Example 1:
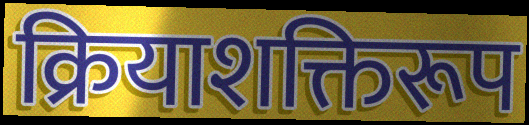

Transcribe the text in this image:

क्रियाशक्तिरूप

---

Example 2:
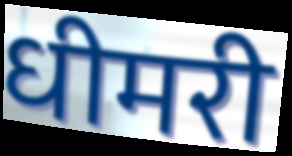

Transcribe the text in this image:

धीमरी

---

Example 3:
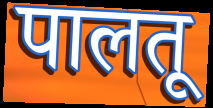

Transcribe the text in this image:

पालतू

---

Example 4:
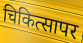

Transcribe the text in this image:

चिकित्सापर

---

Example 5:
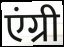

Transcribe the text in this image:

एंग्री